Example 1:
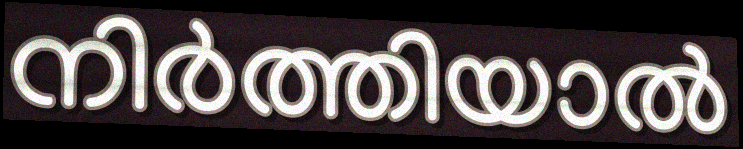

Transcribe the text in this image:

നിർത്തിയാൽ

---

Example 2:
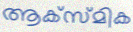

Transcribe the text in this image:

ആക്സ്മിക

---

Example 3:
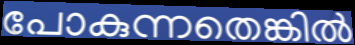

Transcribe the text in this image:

പോകുന്നതെങ്കിൽ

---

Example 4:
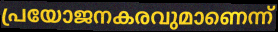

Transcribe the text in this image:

പ്രയോജനകരവുമാണെന്ന്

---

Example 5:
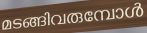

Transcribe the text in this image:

മടങ്ങിവരുമ്പോൾ